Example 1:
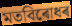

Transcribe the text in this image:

মতবিৰোধৰ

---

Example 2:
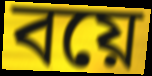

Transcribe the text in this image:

বয়ে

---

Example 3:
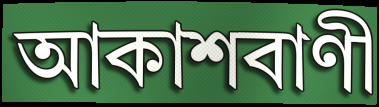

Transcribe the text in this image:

আকাশবাণী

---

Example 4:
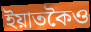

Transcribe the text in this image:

ইয়াতকৈও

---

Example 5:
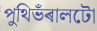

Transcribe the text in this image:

পুথিভঁৰালটো